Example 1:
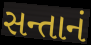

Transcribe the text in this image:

સન્તાનં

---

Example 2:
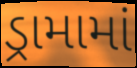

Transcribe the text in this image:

ડ્રામામાં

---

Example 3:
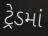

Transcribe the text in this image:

ટ્રેડમાં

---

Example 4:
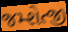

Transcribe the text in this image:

જમ્શેત્જી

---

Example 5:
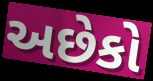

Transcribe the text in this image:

અછેકો